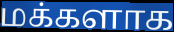
மக்களாக